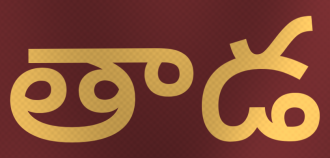
తాడ